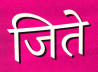
जिते